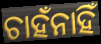
ଚାହଁନାହିଁ